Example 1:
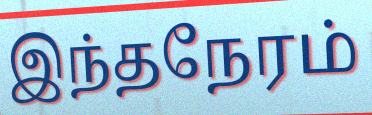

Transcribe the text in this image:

இந்தநேரம்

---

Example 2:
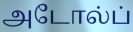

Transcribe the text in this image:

அடோல்ப்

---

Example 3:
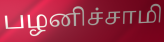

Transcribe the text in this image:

பழனிச்சாமி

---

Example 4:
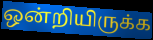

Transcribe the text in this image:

ஒன்றியிருக்க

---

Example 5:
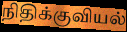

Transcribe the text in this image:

நிதிக்குவியல்